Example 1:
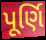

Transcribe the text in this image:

પૂર્ણિ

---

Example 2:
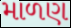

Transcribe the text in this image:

માળણ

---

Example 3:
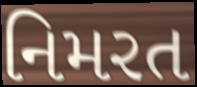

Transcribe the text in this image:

નિમરત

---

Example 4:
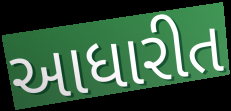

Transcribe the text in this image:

આધારીત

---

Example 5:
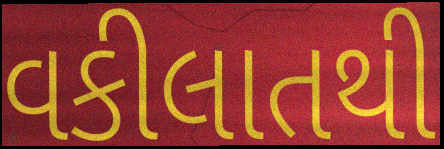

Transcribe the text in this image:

વકીલાતથી